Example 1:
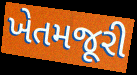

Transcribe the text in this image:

ખેતમજૂરી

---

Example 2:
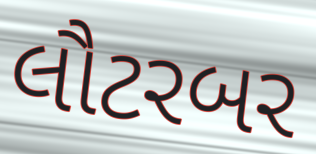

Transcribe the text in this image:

લૌટરબર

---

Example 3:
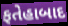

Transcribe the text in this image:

ફતેહાબાદ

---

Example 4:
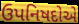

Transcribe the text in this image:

ઉપનિષદોએ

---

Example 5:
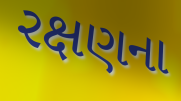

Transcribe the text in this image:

રક્ષણના